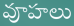
వూహలు